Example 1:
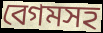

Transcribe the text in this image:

বেগমসহ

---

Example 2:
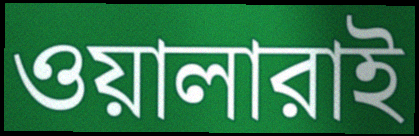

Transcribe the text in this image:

ওয়ালারাই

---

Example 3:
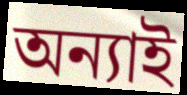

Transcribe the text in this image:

অন্যাই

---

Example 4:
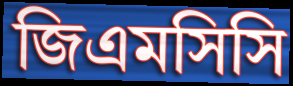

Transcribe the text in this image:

জিএমসিসি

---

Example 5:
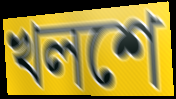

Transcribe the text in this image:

খলশে